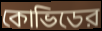
কোভিডের